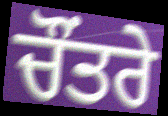
ਚੌਂਤਰੇ